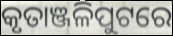
କୃତାଞ୍ଜଳିପୁଟରେ